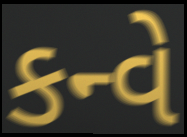
કન્વે